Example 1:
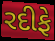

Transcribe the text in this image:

રદીફે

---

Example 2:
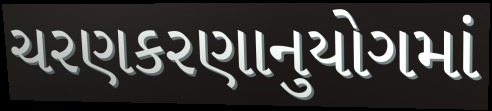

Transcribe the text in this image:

ચરણકરણાનુયોગમાં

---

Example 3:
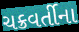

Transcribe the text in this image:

ચક્રવર્તીના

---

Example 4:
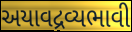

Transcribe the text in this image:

અયાવદ્રવ્યભાવી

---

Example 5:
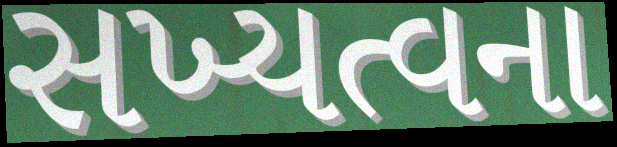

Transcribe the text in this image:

સખ્યત્વના